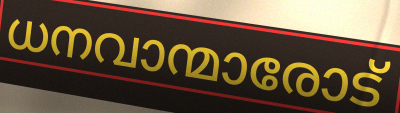
ധനവാന്മാരോട്